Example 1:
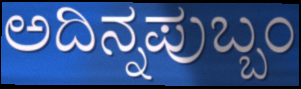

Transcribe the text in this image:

ಅದಿನ್ನಪುಬ್ಬಂ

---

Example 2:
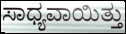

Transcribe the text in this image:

ಸಾಧ್ಯವಾಯಿತ್ತು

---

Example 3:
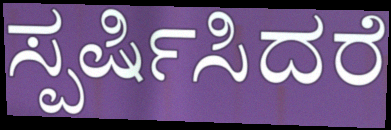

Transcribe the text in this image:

ಸ್ಪರ್ಷಿಸಿದರೆ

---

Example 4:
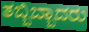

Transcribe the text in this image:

ತಬ್ಬಿಬ್ಬಾದರು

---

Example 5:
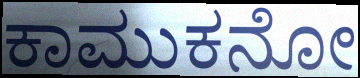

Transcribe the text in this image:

ಕಾಮುಕನೋ